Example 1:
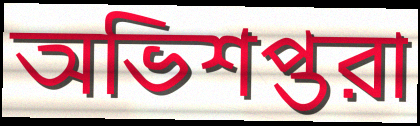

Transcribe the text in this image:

অভিশপ্তরা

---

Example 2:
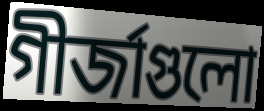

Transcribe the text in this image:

গীর্জাগুলো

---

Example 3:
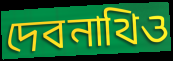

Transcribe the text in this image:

দেবনাথিও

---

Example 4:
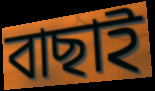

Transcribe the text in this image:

বাছাই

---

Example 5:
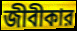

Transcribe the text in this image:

জীবীকার